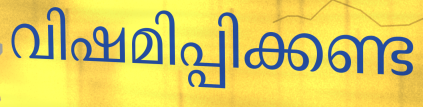
വിഷമിപ്പിക്കണ്ട